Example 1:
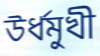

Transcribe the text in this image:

উর্ধমুখী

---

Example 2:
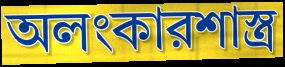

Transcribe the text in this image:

অলংকারশাস্ত্র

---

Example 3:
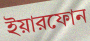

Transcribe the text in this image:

ইয়ারফোন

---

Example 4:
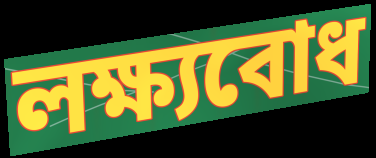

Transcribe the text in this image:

লক্ষ্যবোধ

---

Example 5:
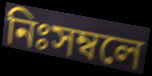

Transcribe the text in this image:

নিঃসম্বলে